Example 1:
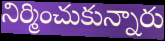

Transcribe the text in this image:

నిర్మించుకున్నారు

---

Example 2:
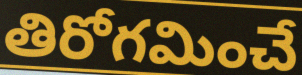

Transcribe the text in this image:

తిరోగమించే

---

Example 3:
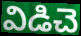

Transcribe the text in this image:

విడిచె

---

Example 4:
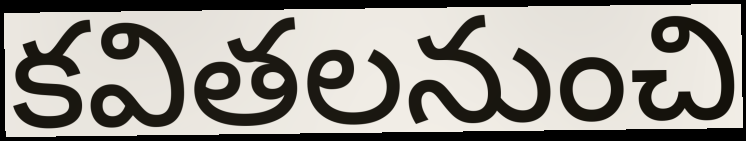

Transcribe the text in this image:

కవితలనుంచి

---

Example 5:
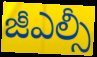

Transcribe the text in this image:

జీఎల్సీ